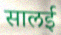
सालई